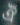
ঐঁ